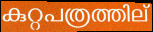
കുറ്റപത്രത്തില്